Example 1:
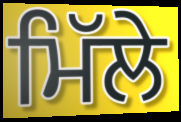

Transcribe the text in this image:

ਮਿੱਲੇ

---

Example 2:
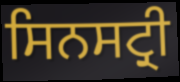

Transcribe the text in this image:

ਸਿਨਸਟ੍ਰੀ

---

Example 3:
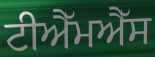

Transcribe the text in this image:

ਟੀਐੱਮਐੱਸ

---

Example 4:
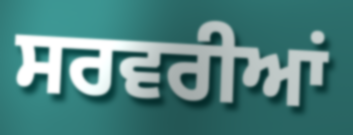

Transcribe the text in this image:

ਸਰਵਰੀਆਂ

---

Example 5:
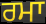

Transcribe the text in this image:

ਰਮਾ